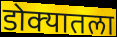
डोक्‍यातला